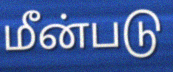
மீன்படு